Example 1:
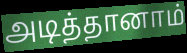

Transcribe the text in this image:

அடித்தானாம்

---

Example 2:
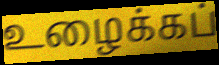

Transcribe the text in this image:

உழைக்கப்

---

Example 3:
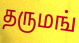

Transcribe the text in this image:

தருமங்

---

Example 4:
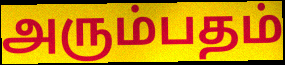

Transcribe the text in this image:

அரும்பதம்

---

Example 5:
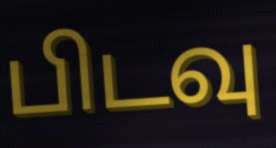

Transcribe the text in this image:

பிடவு